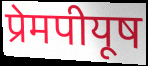
प्रेमपीयूष